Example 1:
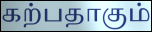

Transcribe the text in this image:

கற்பதாகும்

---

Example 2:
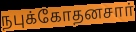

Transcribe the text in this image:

நபுக்கோதனசார்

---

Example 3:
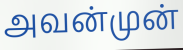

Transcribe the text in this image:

அவன்முன்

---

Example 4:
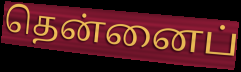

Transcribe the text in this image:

தென்னைப்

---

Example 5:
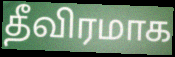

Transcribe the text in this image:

தீவிரமாக